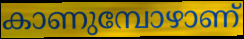
കാണുമ്പോഴാണ്